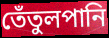
তেঁতুলপানি